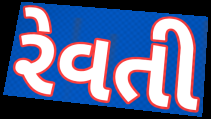
રેવતી